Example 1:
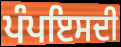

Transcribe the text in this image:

ਪੰਪਇਸਦੀ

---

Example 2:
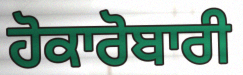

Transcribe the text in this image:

ਹੋਕਾਰੋਬਾਰੀ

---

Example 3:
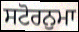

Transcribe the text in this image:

ਸਟੋਰਨੁਮਾ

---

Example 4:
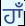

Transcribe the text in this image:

ਹਾਁ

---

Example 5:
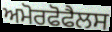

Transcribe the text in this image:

ਅਮੋਰਫੋਫੈਲਸ